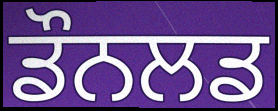
ਡੌਨਲਡ